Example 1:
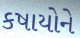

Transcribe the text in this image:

કષાયોને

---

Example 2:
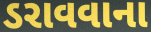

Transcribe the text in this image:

ડરાવવાના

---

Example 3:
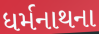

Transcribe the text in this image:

ધર્મનાથના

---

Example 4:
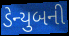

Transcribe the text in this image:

ડેન્યુબની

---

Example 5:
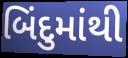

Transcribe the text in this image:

બિંદુમાંથી